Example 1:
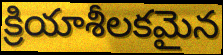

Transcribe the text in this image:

క్రియాశీలకమైన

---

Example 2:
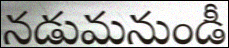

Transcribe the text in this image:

నడుమనుండీ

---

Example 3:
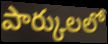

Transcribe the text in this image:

పార్కులలో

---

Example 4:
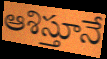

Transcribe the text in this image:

ఆశిస్తూనే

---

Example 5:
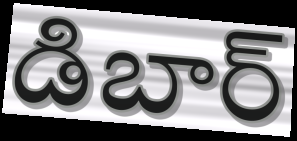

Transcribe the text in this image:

డిబార్